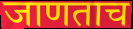
जाणताच